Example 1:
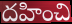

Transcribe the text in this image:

దహించి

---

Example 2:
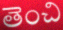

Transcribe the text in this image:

తెంచి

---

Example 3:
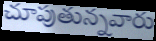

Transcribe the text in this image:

చూపుతున్నవారు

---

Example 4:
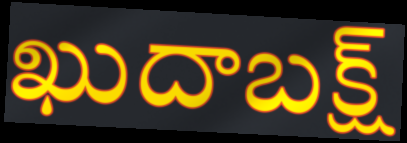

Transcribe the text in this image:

ఖుదాబక్ష్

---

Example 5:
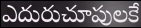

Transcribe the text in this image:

ఎదురుచూపులకే